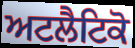
ਅਟਲੈਟਿਕੋ